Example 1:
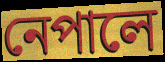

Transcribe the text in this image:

নেপালে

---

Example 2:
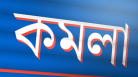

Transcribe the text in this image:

কমলা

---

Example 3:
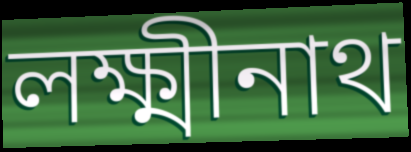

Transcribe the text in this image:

লক্ষ্মীনাথ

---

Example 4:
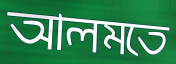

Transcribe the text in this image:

আলমতে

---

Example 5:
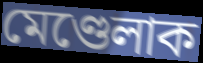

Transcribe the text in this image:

মেণ্ডেলাক